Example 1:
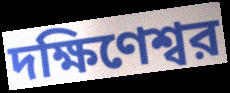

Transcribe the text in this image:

দক্ষিণেশ্বর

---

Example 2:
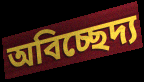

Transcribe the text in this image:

অবিচ্ছেদ্য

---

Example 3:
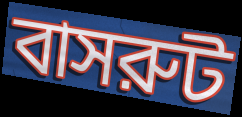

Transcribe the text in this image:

বাসরুট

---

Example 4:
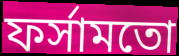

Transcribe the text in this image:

ফর্সামতো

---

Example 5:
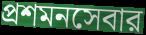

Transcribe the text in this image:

প্রশমনসেবার